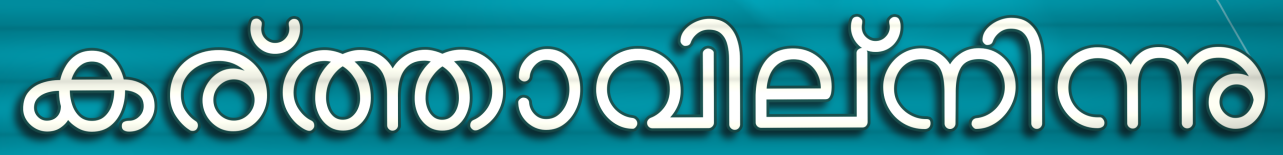
കര്ത്താവില്നിന്നു